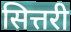
सित्तरी